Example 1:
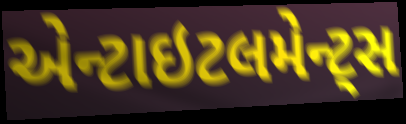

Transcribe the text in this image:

એન્ટાઇટલમેન્ટ્સ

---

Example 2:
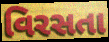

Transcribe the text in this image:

વિરસતા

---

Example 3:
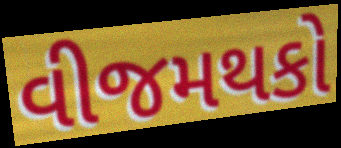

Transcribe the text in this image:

વીજમથકો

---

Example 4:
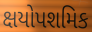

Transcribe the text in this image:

ક્ષયોપશમિક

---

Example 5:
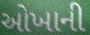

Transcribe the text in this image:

ઓખાની